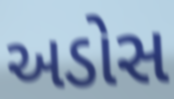
અડોસ